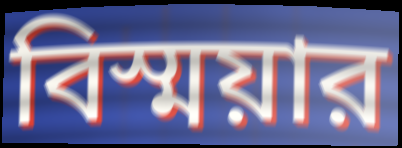
বিস্ময়ার